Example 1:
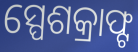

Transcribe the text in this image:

ସ୍ପେଶକ୍ରାଫ୍ଟ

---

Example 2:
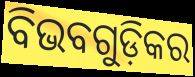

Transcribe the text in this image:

ବିଭବଗୁଡ଼ିକର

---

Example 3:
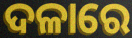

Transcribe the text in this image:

ଦଳାରେ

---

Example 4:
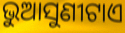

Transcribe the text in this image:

ଭୁଆସୁଣୀଟାଏ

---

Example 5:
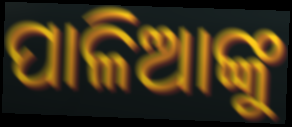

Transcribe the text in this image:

ପାଳିଆଙ୍କୁ